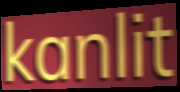
kanlit